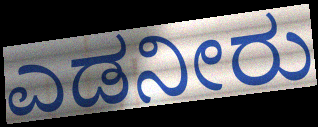
ಎಡನೀರು